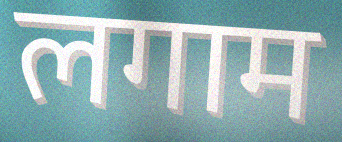
लगाम